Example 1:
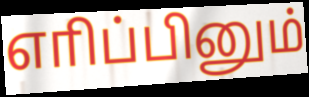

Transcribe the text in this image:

எரிப்பினும்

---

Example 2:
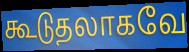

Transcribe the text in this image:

கூடுதலாகவே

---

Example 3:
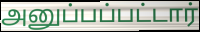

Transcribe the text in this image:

அனுப்பப்பட்டார்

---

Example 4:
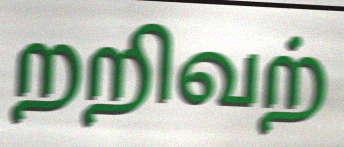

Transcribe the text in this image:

றறிவற்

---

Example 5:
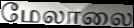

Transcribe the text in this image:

மேலாலை